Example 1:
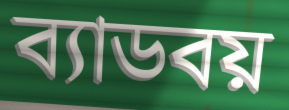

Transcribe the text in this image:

ব্যাডবয়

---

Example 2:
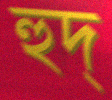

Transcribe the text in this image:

হুদ্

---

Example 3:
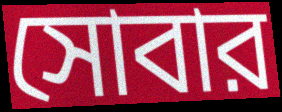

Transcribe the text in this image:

সোবার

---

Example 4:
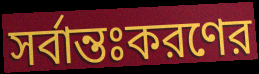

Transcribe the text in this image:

সর্বান্তঃকরণের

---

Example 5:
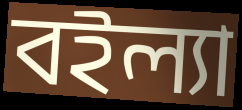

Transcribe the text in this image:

বইল্যা